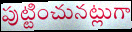
పుట్టించునట్లుగా